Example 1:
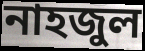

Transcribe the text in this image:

নাহজুল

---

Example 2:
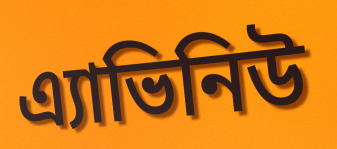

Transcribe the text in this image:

এ্যাভিনিউ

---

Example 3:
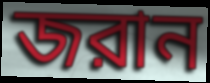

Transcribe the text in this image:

জরান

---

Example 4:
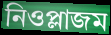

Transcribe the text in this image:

নিওপ্লাজম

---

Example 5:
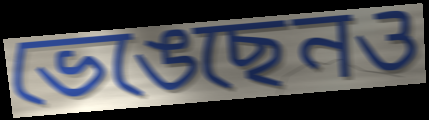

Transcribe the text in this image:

ভেঙেছেনও